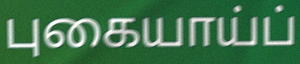
புகையாய்ப்